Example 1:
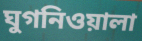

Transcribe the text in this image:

ঘুগনিওয়ালা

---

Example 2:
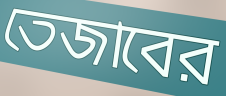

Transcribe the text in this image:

তেজাবের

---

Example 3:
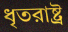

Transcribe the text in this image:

ধৃতরাষ্ট্র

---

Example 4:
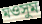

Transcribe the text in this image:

মওসুম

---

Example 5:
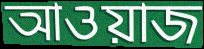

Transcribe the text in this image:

আওয়াজ